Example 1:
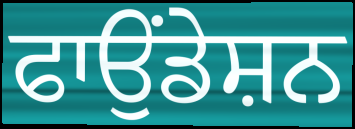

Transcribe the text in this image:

ਫਾਉਂਡੇਸ਼ਨ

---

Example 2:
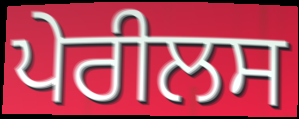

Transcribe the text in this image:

ਪੇਰੀਲਸ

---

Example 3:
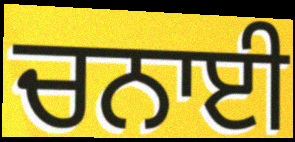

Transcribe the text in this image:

ਚਨਾਈ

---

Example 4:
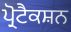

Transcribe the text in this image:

ਪ੍ਰੋਟੈਕਸ਼ਨ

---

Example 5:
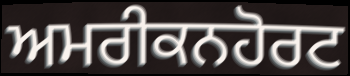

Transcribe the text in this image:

ਅਮਰੀਕਨਹੋਰਟ